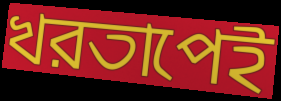
খরতাপেই